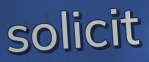
solicit